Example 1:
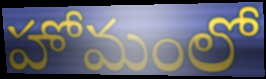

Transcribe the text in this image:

హోమంలో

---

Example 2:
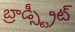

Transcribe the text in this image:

బ్రాడ్స్ట్రీట్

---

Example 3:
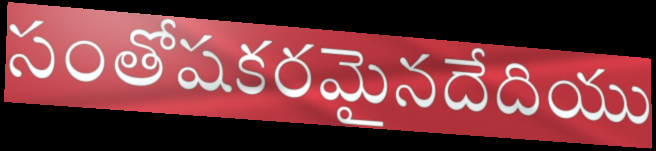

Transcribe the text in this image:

సంతోషకరమైనదేదియు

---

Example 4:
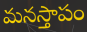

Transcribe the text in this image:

మనస్తాపం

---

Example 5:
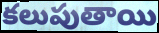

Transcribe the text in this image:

కలుపుతాయి